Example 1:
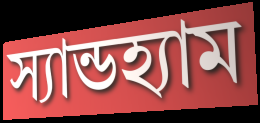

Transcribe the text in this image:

স্যান্ডহ্যাম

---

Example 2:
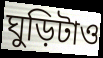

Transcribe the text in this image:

ঘুড়িটাও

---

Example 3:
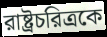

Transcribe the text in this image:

রাষ্ট্রচরিত্রকে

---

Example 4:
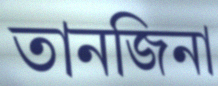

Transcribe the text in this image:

তানজিনা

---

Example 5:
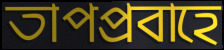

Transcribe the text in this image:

তাপপ্রবাহে